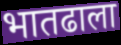
भातढाला